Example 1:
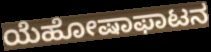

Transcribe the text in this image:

ಯೆಹೋಷಾಫಾಟನ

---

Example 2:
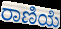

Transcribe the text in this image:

ರಾಣಿಯೆ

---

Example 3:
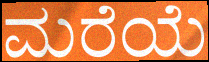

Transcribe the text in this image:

ಮರೆಯೆ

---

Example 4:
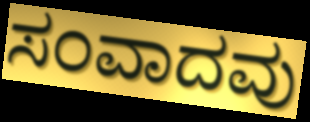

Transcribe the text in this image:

ಸಂವಾದವು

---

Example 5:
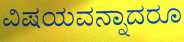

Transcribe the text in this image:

ವಿಷಯವನ್ನಾದರೂ